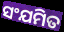
ସଂଯମିତ